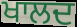
ਖਾਲਦ